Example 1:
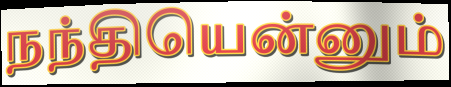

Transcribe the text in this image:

நந்தியென்னும்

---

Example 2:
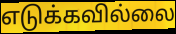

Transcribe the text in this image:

எடுக்கவில்லை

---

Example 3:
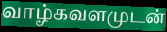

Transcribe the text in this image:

வாழ்கவளமுடன்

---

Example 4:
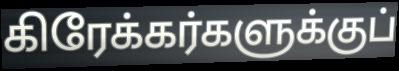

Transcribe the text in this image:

கிரேக்கர்களுக்குப்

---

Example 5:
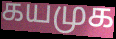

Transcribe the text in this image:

கயமுக